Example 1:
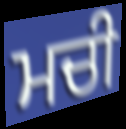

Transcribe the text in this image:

ਮਚੀ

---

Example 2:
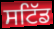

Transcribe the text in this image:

ਸਟਿੱਡ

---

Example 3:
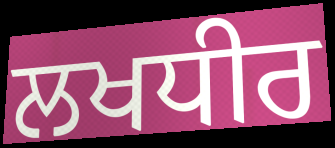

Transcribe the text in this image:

ਲਖਧੀਰ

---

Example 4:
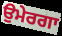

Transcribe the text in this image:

ਉਮੇਰਗਾ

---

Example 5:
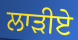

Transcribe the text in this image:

ਲਾੜੀਏ